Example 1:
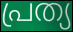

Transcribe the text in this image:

പ്രത്യ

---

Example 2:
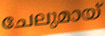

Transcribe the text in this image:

ചേലുമായ്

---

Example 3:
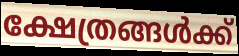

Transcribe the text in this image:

ക്ഷേത്രങ്ങൾക്ക്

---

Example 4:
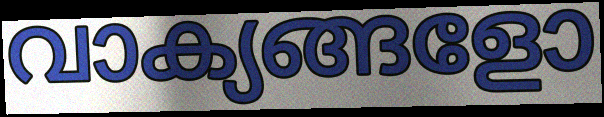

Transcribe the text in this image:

വാക്യങ്ങളോ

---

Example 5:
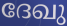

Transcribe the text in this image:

ദേഖു